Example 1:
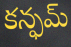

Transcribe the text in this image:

కన్ఫమ్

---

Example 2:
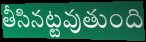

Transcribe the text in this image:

తీసినట్టవుతుంది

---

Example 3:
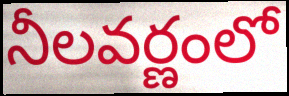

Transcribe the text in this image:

నీలవర్ణంలో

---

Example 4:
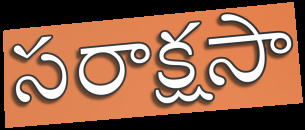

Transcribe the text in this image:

సరాక్షసా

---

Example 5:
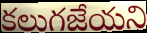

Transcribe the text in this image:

కలుగజేయని